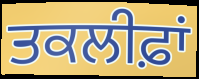
ਤਕਲੀਫ਼ਾਂ